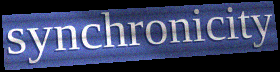
synchronicity